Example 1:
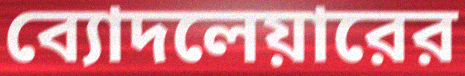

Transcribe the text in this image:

ব্যোদলেয়ারের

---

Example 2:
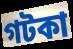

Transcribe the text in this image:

গটকা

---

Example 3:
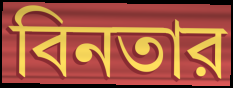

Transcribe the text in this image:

বিনতার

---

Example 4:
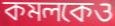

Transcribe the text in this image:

কমলকেও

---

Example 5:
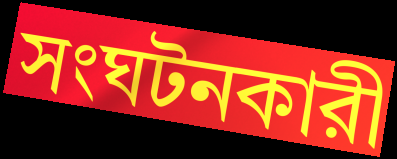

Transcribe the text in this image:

সংঘটনকারী